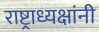
राष्ट्राध्यक्षांनी